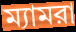
ম্যামরা